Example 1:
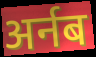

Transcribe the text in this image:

अर्नब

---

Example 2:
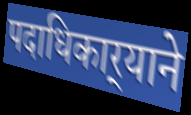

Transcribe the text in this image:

पदाधिकार्याने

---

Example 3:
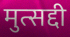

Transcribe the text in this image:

मुत्सद्दी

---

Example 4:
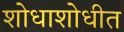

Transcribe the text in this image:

शोधाशोधीत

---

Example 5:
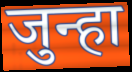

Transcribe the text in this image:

जुन्हा